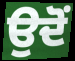
ਉਦੋੰ